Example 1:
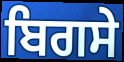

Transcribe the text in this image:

ਬਿਗਸੇ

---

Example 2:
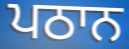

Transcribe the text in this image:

ਪਠਾਨ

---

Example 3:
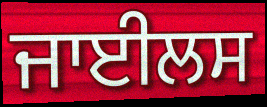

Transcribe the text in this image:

ਜਾਈਲਸ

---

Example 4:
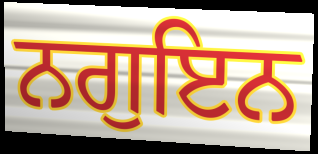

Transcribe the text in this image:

ਨਗੁਇਨ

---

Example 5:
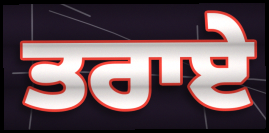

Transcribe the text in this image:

ਤਰਾਏ